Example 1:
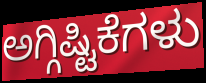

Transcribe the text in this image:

ಅಗ್ಗಿಷ್ಟಿಕೆಗಳು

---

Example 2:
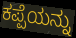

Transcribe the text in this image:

ಕಪ್ಪೆಯನ್ನು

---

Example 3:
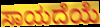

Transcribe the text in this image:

ಸಾಯದೆಯೆ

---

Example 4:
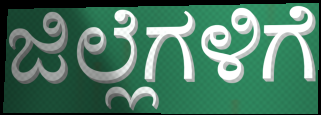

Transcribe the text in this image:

ಜಿಲ್ಲೆಗಳಿಗೆ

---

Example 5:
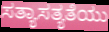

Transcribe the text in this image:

ಸತ್ಯಾಸತ್ಯತೆಯು